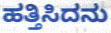
ಹತ್ತಿಸಿದನು